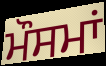
ਮੌਸਮਾਂ